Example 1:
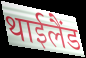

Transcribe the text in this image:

थाईलैंड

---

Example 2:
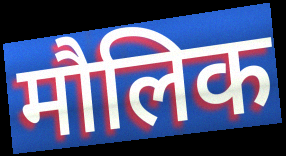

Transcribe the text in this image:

मौलिक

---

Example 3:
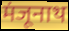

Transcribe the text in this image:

मंजूनाथ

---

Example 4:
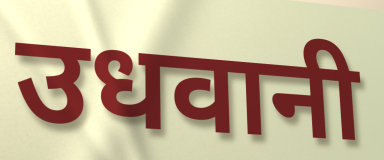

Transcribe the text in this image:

उधवानी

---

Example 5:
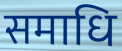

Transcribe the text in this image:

समाधि